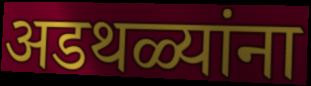
अडथळ्यांना